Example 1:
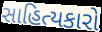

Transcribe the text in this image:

સાહિત્યકારો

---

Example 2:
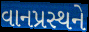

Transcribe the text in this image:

વાનપ્રસ્થને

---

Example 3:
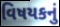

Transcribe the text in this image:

વિષયકનું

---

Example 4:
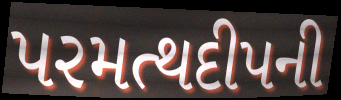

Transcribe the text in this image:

પરમત્થદીપની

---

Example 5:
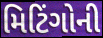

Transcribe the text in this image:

મિટિંગોની